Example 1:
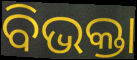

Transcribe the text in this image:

ବିଭକ୍ତା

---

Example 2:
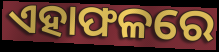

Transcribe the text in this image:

ଏହାଫଳରେ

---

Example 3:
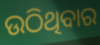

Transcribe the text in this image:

ଉଠିଥିବାର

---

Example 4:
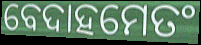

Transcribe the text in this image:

ବେଦାହମେତଂ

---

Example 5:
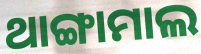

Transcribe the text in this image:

ଥାଙ୍ଗାମାଲ